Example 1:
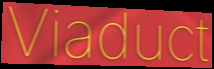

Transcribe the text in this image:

Viaduct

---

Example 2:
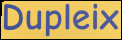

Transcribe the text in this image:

Dupleix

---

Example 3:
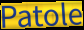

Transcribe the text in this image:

Patole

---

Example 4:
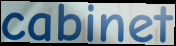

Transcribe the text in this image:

cabinet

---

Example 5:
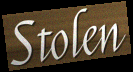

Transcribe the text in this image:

Stolen